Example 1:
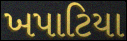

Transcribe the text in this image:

ખપાટિયા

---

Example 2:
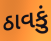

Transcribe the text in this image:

ઠાવકું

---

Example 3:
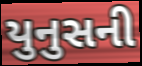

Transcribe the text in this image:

યુનુસની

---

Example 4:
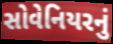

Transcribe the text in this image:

સોવેનિયરનું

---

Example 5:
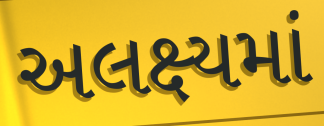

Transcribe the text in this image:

અલક્ષ્યમાં